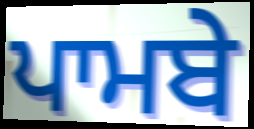
ਪਾਮਬੇ